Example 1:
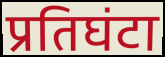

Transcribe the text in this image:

प्रतिघंटा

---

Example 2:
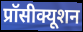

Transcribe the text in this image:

प्रॉसीक्यूशन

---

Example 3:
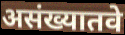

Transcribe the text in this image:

असंख्यातवे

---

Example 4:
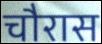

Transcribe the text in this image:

चौरास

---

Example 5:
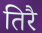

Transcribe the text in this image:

तिरै